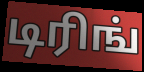
டிரிங்